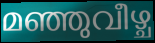
മഞ്ഞുവീഴ്ച